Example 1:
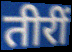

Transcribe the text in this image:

तीरीं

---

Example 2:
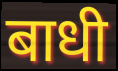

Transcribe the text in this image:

बाधी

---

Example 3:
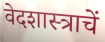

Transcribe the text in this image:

वेदशास्त्राचें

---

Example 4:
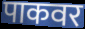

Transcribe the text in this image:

पाकवर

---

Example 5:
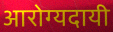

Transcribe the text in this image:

आरोग्यदायी